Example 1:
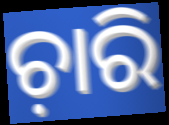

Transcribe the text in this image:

ଚ଼ାରି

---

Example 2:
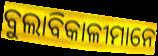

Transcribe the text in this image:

ବୁଲାବିକାଳୀମାନେ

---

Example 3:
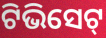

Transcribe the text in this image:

ଟିଭିସେଟ୍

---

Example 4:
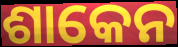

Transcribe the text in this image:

ଶାକେନ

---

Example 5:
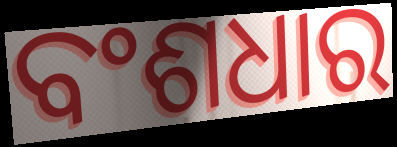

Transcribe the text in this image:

ବଂଶଧାର